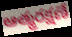
ఆత్మరక్షణే